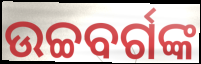
ଉଚ୍ଚବର୍ଗଙ୍କ